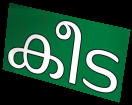
കീട